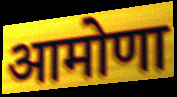
आमोणा